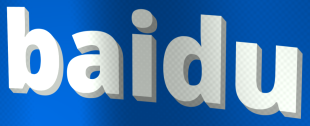
baidu